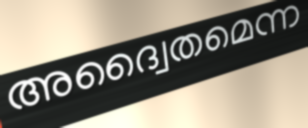
അദ്വൈതമെന്ന